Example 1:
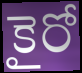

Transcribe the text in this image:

కైరో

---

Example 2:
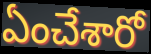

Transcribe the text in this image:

ఏంచేశారో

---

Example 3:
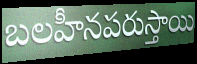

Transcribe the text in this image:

బలహీనపరుస్తాయి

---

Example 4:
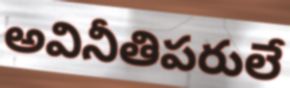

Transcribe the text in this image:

అవినీతిపరులే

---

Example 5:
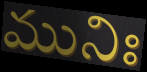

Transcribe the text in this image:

మునిః